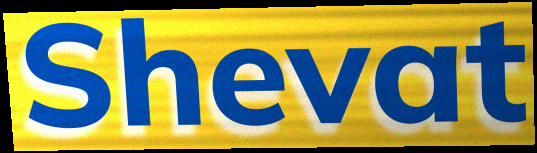
Shevat